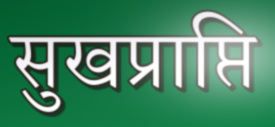
सुखप्राप्ति